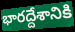
భారద్దేశానికి